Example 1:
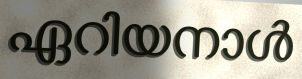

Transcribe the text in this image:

ഏറിയനാൾ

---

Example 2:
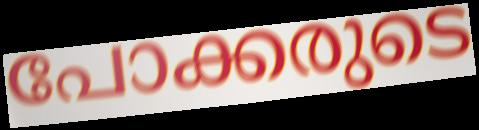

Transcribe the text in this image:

പോക്കരുടെ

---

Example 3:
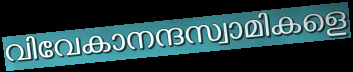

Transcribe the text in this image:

വിവേകാനന്ദസ്വാമികളെ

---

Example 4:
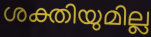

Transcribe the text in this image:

ശക്തിയുമില്ല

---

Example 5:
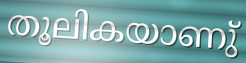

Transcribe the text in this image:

തൂലികയാണു്